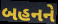
બહનને